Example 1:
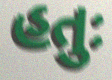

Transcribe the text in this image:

હતુઃ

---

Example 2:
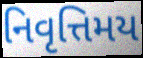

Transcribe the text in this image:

નિવૃત્તિમય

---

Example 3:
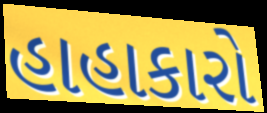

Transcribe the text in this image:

હાહાકારો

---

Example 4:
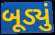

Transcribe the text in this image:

બૂડ્યું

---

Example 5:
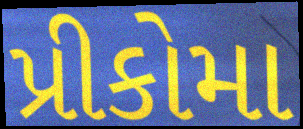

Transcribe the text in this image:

પ્રીકોમા